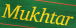
Mukhtar